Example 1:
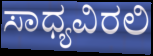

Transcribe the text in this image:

ಸಾಧ್ಯವಿರಲಿ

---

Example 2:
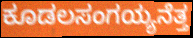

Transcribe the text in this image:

ಕೂಡಲಸಂಗಯ್ಯನೆತ್ತ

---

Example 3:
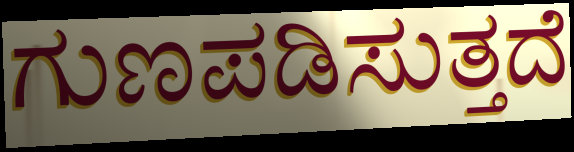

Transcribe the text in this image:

ಗುಣಪಡಿಸುತ್ತದೆ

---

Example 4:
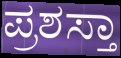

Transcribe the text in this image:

ಪ್ರಶಸ್ತಾ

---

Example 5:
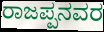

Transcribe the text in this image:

ರಾಜಪ್ಪನವರ